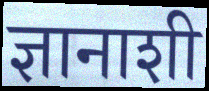
ज्ञानाशी